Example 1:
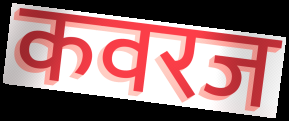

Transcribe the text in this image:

कवरज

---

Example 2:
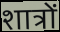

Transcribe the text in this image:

शात्रों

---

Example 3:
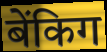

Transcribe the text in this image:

बेंकिग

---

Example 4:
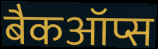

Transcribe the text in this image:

बैकऑप्स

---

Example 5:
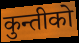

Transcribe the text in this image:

कुन्तीको